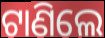
ଟାଣିଲେ